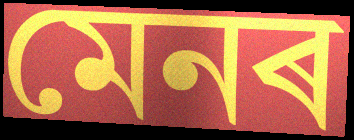
মেনৰ